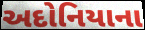
અદોનિયાના